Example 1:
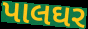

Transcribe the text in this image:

પાલઘર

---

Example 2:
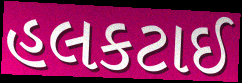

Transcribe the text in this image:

હલકટાઈ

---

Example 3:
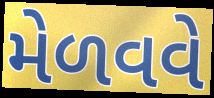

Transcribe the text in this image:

મેળવવે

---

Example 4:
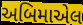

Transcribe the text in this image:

અબિમાએલ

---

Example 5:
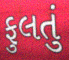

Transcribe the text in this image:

ફુલતું